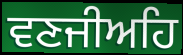
ਵਣਜੀਅਹਿ